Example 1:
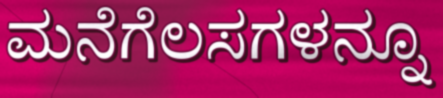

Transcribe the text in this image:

ಮನೆಗೆಲಸಗಳನ್ನೂ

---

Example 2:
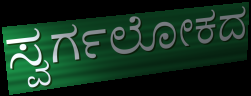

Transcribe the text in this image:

ಸ್ವರ್ಗಲೋಕದ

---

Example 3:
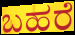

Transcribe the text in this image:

ಬಹರೆ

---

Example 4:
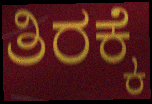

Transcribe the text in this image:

ತಿರಕ್ಕೆ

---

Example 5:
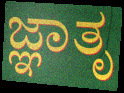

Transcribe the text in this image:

ಜ್ಞಾತೃ